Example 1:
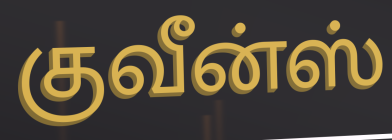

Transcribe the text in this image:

குவீன்ஸ்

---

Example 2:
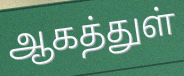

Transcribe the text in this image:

ஆகத்துள்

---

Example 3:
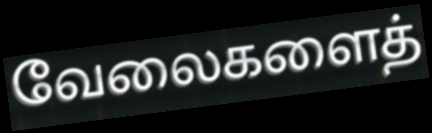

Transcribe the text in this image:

வேலைகளைத்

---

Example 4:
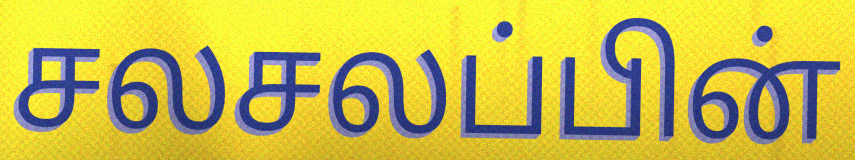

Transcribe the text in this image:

சலசலப்பின்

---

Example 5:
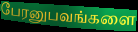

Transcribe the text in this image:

பேரனுபவங்களை